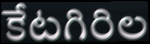
కేటగిరిల